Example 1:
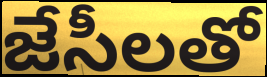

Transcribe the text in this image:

జేసీలతో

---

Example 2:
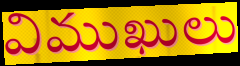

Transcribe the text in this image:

విముఖులు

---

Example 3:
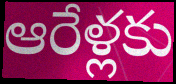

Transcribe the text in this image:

ఆరేళ్లకు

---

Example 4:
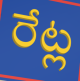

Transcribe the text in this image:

రేట్ల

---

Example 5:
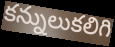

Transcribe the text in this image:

కన్నులుకలిగి